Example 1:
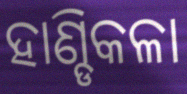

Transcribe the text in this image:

ହାଣ୍ଡିକଳା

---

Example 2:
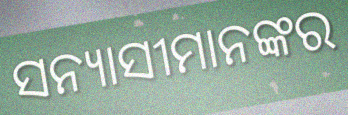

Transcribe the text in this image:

ସନ୍ୟାସୀମାନଙ୍କର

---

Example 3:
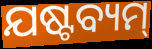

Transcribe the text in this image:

ଯଷ୍ଟବ୍ୟମ୍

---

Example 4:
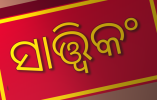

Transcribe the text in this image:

ସାତ୍ତ୍ୱିକଂ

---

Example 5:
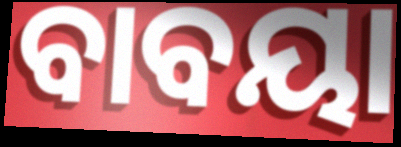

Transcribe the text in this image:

ବାବୟା